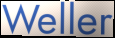
Weller